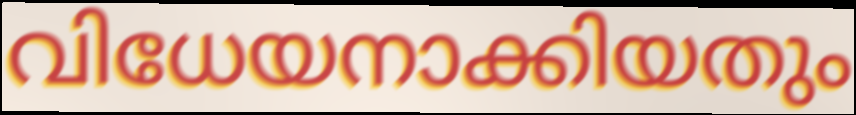
വിധേയനാക്കിയതും